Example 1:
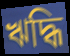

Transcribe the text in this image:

ঋদ্ধি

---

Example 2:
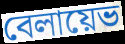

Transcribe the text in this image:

বেলায়েভ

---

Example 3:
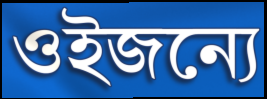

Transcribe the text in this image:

ওইজন্যে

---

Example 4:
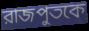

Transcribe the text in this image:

রাজপুতকে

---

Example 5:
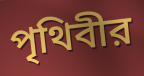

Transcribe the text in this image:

পৃথিবীর